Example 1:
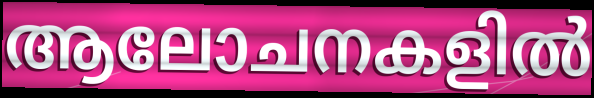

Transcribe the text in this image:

ആലോചനകളിൽ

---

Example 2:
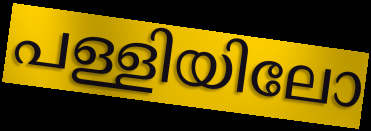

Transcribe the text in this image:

പള്ളിയിലോ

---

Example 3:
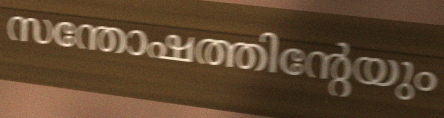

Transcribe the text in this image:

സന്തോഷത്തിന്റേയും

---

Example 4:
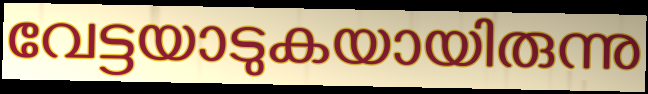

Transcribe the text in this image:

വേട്ടയാടുകയായിരുന്നു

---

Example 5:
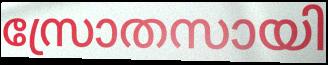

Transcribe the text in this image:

സ്രോതസായി